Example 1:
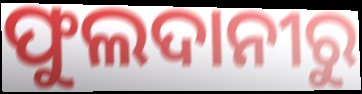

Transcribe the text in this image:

ଫୁଲଦାନୀରୁ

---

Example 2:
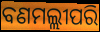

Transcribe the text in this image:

ବଣମଲ୍ଲୀପରି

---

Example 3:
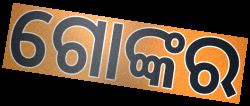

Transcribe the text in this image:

ଗୋଙ୍କର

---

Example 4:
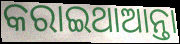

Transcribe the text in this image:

କରାଇଥାଆନ୍ତା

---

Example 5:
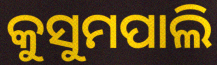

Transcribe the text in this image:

କୁସୁମପାଲି